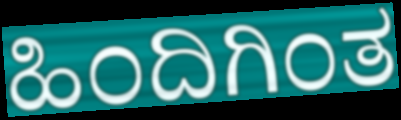
ಹಿಂದಿಗಿಂತ